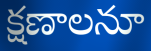
క్షణాలనూ